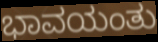
ಭಾವಯಂತು